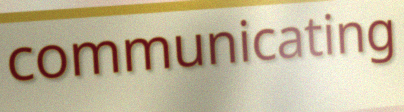
communicating